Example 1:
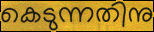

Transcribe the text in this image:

കെടുന്നതിനു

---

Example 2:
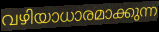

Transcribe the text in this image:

വഴിയാധാരമാക്കുന്ന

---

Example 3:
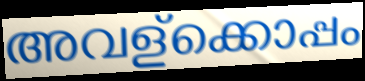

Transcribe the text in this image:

അവള്ക്കൊപ്പം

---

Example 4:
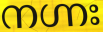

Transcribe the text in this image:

നഗ്നഃ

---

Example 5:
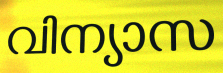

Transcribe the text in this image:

വിന്യാസ